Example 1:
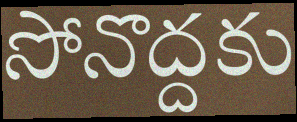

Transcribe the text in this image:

సోనొద్దకు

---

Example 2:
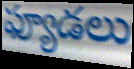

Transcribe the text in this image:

ఫ్యూడలు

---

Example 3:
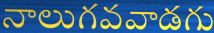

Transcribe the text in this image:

నాలుగవవాడగు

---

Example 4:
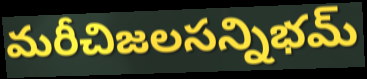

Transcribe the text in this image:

మరీచిజలసన్నిభమ్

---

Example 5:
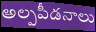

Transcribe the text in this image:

అల్పపీడనాలు